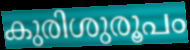
കുരിശുരൂപം